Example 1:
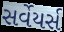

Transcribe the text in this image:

સર્વેયર્સ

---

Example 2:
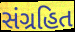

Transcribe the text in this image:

સંગ્રહિત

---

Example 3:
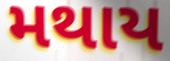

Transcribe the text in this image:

મથાય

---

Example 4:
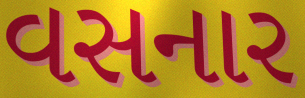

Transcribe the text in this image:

વસનાર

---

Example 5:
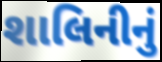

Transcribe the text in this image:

શાલિનીનું